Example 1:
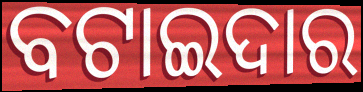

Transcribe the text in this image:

ବଟାଇଦାର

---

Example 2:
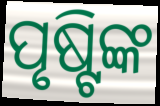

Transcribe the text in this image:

ପୃଷ୍ଟିଙ୍କ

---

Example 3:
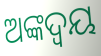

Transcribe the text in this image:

ଅଙ୍କଦ୍ବୟ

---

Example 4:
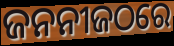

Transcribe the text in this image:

ଜନନୀଜଠରେ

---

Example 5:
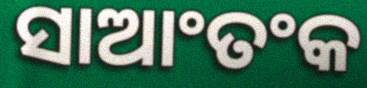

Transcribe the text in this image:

ସାଆଂତଂକ